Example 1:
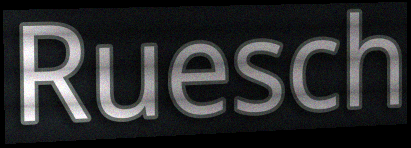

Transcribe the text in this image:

Ruesch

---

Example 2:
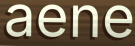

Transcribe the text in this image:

aene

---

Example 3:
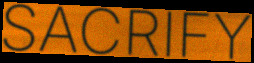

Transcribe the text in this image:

SACRIFY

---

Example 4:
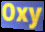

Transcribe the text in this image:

Oxy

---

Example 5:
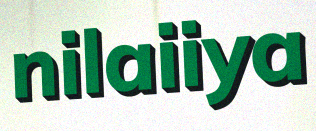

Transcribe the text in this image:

nilaiiya